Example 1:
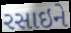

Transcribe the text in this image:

રસાઇને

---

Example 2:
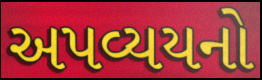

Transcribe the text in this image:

અપવ્યયનો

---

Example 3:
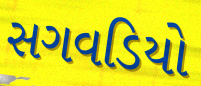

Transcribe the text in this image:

સગવડિયો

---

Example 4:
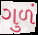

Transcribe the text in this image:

ગુળં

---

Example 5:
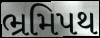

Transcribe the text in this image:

ભ્રમિપથ